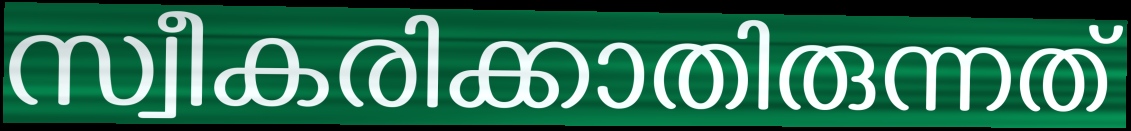
സ്വീകരിക്കാതിരുന്നത്